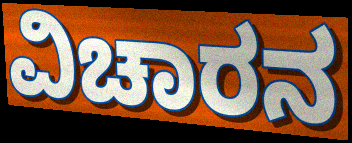
ವಿಚಾರನ